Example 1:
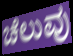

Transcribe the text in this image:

ಚೆಲುವು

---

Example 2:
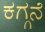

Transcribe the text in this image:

ಕಗ್ಗನೆ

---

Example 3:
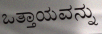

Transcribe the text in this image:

ಒತ್ತಾಯವನ್ನು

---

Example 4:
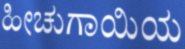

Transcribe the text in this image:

ಹೀಚುಗಾಯಿಯ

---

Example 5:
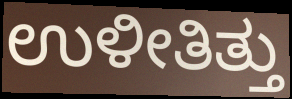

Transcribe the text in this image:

ಉಳೀತಿತ್ತು